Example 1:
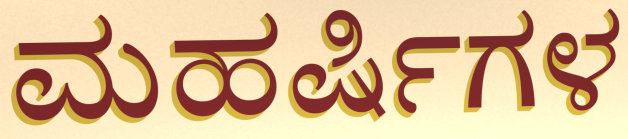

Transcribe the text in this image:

ಮಹರ್ಷಿಗಳ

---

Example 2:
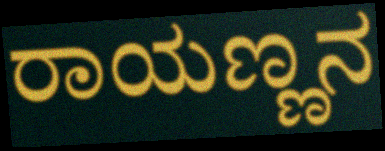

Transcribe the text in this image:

ರಾಯಣ್ಣನ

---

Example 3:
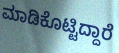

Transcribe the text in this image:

ಮಾಡಿಕೊಟ್ಟಿದ್ದಾರೆ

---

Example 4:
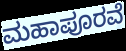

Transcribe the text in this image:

ಮಹಾಪೂರವೆ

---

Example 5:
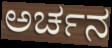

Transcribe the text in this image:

ಅರ್ಚನ